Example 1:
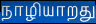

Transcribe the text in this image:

நாழியாறது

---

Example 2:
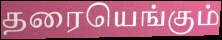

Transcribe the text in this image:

தரையெங்கும்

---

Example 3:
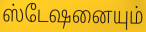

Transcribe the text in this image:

ஸ்டேஷனையும்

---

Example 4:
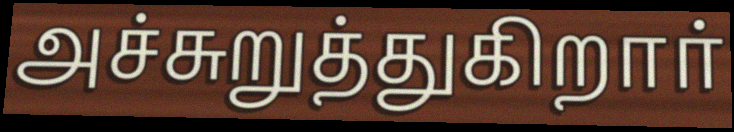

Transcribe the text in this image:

அச்சுறுத்துகிறார்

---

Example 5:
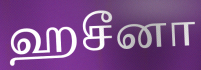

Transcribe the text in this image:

ஹசீனா